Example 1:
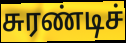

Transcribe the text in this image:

சுரண்டிச்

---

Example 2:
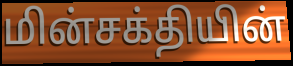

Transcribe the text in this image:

மின்சக்தியின்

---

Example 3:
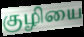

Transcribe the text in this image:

குழியை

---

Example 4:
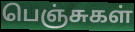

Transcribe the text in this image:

பெஞ்சுகள்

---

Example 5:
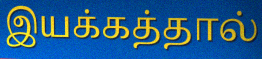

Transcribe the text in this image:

இயக்கத்தால்